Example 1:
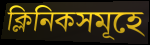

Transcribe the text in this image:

ক্লিনিকসমূহে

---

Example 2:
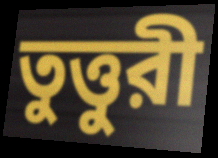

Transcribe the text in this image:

তুত্তুরী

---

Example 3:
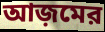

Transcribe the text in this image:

আজ়মের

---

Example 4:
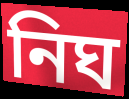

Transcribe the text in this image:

নিঘ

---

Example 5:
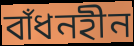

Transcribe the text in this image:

বাঁধনহীন